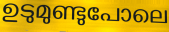
ഉടുമുണ്ടുപോലെ